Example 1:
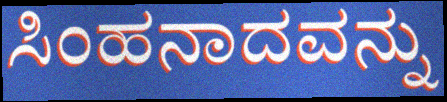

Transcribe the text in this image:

ಸಿಂಹನಾದವನ್ನು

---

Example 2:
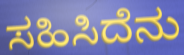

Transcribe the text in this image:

ಸಹಿಸಿದೆನು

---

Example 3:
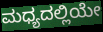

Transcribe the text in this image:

ಮಧ್ಯದಲ್ಲಿಯೇ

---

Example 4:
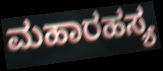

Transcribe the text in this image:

ಮಹಾರಹಸ್ಯ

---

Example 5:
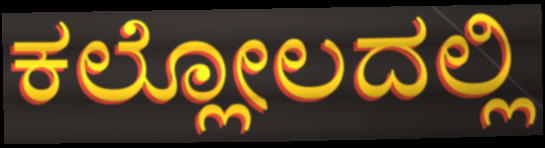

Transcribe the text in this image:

ಕಲ್ಲೋಲದಲ್ಲಿ